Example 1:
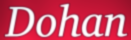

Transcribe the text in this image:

Dohan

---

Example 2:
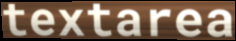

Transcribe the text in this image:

textarea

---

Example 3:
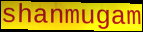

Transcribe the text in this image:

shanmugam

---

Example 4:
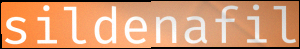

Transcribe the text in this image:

sildenafil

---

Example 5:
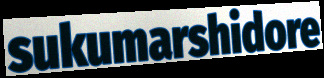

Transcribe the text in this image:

sukumarshidore